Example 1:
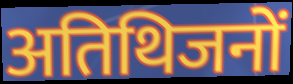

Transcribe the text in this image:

अतिथिजनों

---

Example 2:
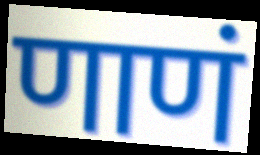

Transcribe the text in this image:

णाणं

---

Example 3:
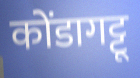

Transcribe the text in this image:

कोंडागट्टू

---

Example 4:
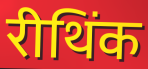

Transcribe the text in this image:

रीथिंक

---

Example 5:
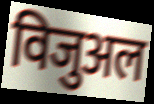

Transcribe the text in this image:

विजुअल